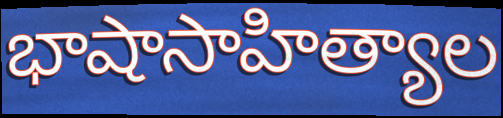
భాషాసాహిత్యాల